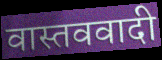
वास्तववादी